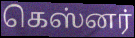
கெஸ்னர்